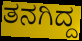
ತನಗಿದ್ದ